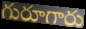
గురూగారు